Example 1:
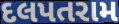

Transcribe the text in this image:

દલપતરામ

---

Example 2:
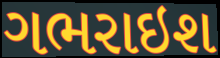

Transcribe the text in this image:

ગભરાઇશ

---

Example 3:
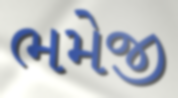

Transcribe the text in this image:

ભમેજી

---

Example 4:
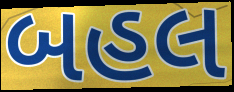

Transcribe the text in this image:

બહલ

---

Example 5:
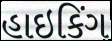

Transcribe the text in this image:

હાઇકિંગ